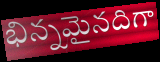
భిన్నమైనదిగా